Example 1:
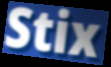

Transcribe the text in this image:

Stix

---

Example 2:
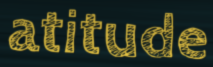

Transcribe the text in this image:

atitude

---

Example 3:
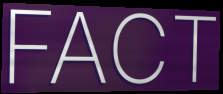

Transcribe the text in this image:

FACT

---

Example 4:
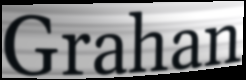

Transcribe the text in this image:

Grahan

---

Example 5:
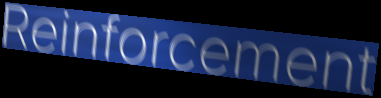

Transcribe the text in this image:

Reinforcement